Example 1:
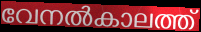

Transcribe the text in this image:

വേനൽകാലത്ത്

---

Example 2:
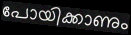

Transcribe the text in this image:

പോയിക്കാണും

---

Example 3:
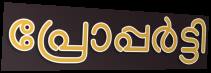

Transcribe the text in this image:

പ്രോപ്പർട്ടി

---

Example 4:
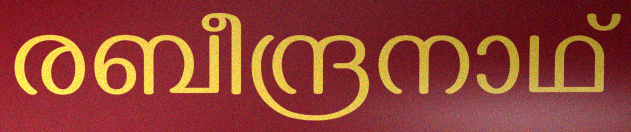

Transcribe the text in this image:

രബീന്ദ്രനാഥ്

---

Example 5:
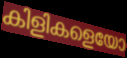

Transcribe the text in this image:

കിളികളെയോ